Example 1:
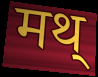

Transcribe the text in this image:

मथ्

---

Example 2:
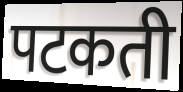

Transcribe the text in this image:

पटकती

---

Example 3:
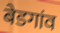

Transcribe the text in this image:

बेडगांव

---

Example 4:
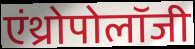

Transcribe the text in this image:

एंथ्रोपोलॉजी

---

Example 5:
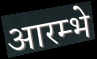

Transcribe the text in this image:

आरम्भे